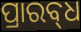
ପ୍ରାରବ୍‍ଧ